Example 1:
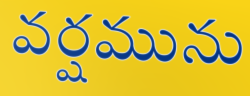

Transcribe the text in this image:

వర్షమును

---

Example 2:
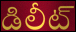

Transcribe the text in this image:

డిలీట్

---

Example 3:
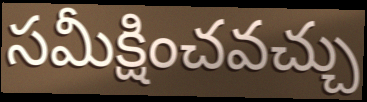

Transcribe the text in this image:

సమీక్షించవచ్చు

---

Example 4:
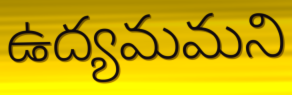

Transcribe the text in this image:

ఉద్యమమని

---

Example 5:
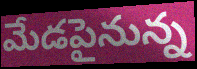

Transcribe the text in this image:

మేడపైనున్న